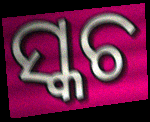
ସ୍କଚ